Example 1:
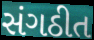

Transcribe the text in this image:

સંગઠીત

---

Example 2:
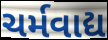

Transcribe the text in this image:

ચર્મવાદ્ય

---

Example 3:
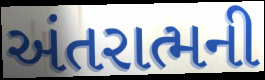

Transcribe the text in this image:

અંતરાત્મની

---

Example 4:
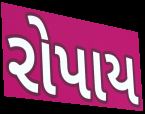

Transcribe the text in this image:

રોપાય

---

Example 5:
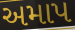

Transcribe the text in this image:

અમાપ